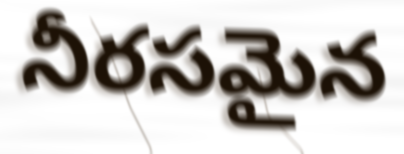
నీరసమైన